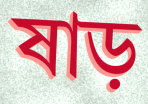
ষাড়